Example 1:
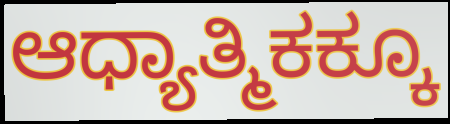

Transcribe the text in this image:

ಆಧ್ಯಾತ್ಮಿಕಕ್ಕೂ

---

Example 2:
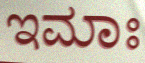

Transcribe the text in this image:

ಇಮಾಃ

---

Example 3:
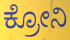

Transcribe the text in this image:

ಕ್ರೋನಿ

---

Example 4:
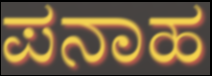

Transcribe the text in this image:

ಪನಾಹ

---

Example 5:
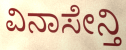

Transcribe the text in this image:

ವಿನಾಸೇನ್ತಿ